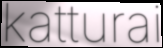
katturai